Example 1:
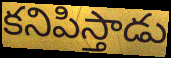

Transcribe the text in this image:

కనిపిస్తాడు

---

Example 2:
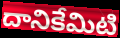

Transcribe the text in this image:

దానికేమిటి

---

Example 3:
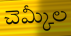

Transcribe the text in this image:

చెమ్కీల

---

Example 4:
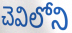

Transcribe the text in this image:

చెవిలోని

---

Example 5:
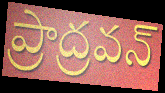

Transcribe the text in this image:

ప్రాద్రవన్